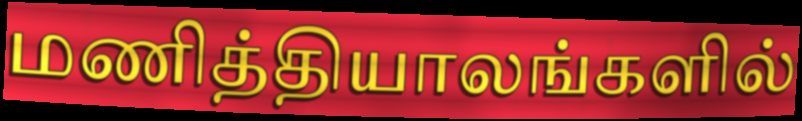
மணித்தியாலங்களில்